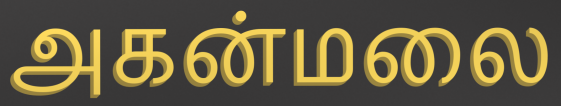
அகன்மலை